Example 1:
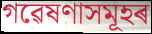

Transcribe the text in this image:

গৱেষণাসমূহৰ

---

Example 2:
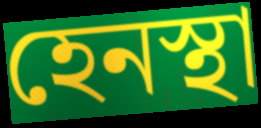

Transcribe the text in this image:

হেনস্থা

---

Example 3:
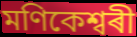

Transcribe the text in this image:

মণিকেশ্বৰী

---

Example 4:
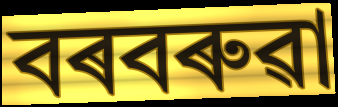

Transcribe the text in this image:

বৰবৰুৱা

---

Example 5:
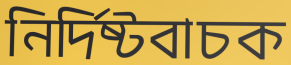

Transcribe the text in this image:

নিৰ্দিষ্টবাচক